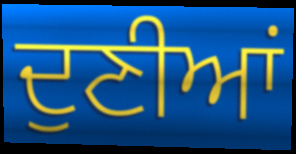
ਦੁਣੀਆਂ